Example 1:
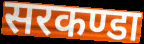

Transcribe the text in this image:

सरकण्डा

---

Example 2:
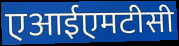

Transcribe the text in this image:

एआईएमटीसी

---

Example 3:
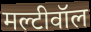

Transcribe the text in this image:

मल्टीवॉल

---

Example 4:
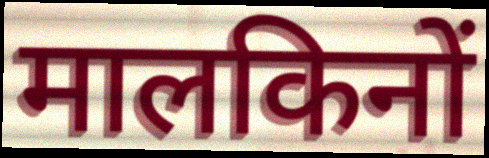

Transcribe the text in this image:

मालकिनों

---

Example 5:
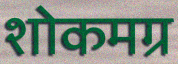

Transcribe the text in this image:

शोकमग्र